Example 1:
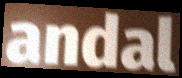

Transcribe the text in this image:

andal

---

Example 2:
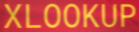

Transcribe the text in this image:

XLOOKUP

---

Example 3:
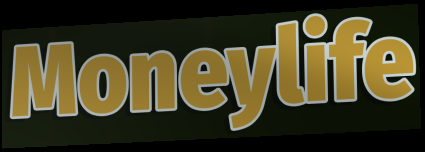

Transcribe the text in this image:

Moneylife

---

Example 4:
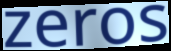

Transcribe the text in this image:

zeros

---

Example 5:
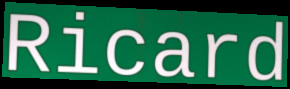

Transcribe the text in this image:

Ricard